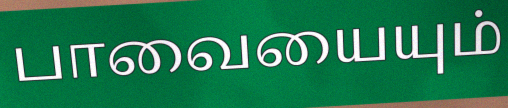
பாவையையும்